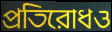
প্রতিরোধও